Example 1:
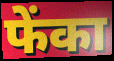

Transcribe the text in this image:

फेंका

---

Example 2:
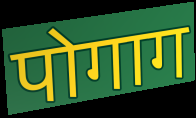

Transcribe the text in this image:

पोगाग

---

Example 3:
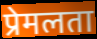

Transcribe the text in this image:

प्रेमलता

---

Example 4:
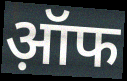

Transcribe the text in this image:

ऑ़फ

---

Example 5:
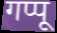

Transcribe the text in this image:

गप्पू